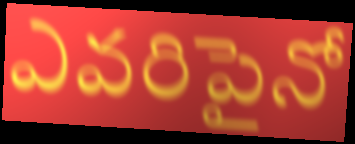
ఎవరిపైనో